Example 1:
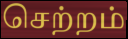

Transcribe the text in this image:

செற்றம்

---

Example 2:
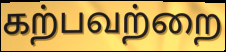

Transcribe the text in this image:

கற்பவற்றை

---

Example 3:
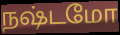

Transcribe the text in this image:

நஷ்டமோ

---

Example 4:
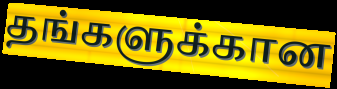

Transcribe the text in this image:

தங்களுக்கான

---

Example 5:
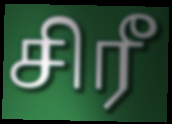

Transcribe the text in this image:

சிரீ